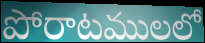
పోరాటములలో